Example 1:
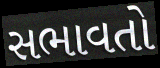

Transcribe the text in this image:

સભાવતો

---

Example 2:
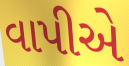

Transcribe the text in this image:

વાપીએ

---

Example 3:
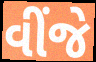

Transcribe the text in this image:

વીંજે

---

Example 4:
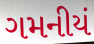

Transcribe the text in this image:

ગમનીયં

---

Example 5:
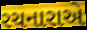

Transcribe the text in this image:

રચનારાએ